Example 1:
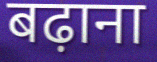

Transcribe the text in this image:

बढ़ाना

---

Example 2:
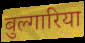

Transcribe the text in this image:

बुल्गारिया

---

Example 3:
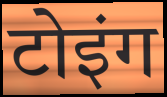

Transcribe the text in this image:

टोइंग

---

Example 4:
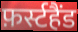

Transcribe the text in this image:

फ़र्स्टहैंड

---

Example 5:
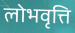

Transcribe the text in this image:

लोभवृत्ति